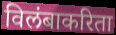
विलंबाकरिता